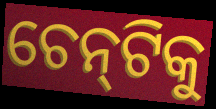
ଚେନ୍‌ଟିକୁ